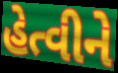
હેત્વીને